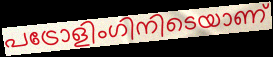
പട്രോളിംഗിനിടെയാണ്